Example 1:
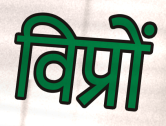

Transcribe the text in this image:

विप्रों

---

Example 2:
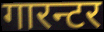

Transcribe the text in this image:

गारन्टर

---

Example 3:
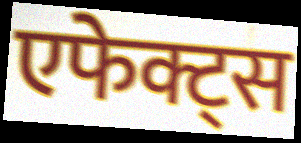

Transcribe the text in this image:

एफेक्ट्स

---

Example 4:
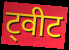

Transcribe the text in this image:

ट्‌वीट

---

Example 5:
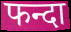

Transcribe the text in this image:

फन्दा